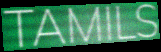
TAMILS